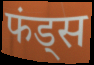
फंड्स